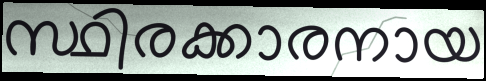
സ്ഥിരക്കാരനായ